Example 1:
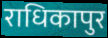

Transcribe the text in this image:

राधिकापुर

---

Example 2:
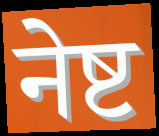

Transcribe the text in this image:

नेष्ट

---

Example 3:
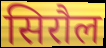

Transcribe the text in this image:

सिरौल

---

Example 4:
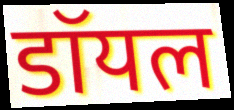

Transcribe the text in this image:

डॉयल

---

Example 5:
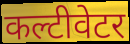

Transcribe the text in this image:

कल्टीवेटर